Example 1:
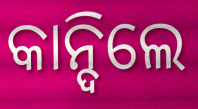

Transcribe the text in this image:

କାନ୍ଦିଲେ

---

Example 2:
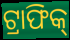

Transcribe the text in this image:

ଟ୍ରାଫିକ୍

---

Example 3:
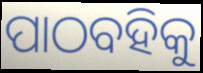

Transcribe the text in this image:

ପାଠବହିକୁ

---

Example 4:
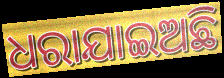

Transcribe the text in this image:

ଧରାଯାଇଅଛି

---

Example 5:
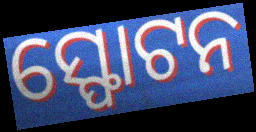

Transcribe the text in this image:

ସ୍ଫୋଟନ